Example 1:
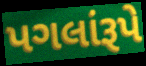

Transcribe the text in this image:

પગલાંરૂપે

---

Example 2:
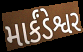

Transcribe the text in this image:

માર્કંડેશ્વર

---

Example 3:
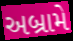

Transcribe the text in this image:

અબ્રામે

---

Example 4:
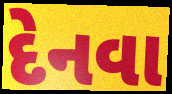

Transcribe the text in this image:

દેનવા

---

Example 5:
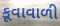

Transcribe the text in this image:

કૂવાવાળી